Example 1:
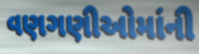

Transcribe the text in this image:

વણગણીઓમાંની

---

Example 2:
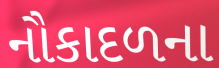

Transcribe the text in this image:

નૌકાદળના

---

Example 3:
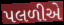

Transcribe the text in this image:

પલળીએ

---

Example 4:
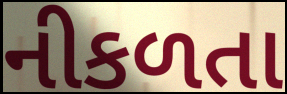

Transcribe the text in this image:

નીકળતા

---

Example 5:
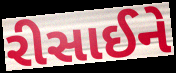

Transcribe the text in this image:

રીસાઈને